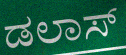
ಡಲಾಸ್